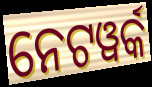
ନେଟୱର୍କ